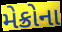
મેક્રોના